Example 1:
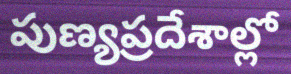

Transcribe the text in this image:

పుణ్యప్రదేశాల్లో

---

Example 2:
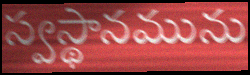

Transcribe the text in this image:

స్వస్థానమును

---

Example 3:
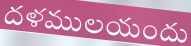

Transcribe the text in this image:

దళములయందు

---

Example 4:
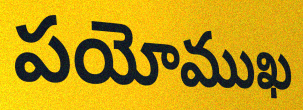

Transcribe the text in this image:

పయోముఖ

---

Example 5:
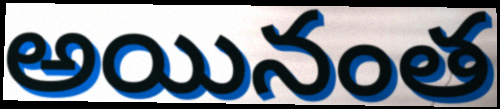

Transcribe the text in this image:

అయినంత